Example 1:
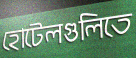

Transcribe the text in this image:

হোটেলগুলিতে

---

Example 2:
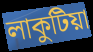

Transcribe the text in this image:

লাকুটিয়া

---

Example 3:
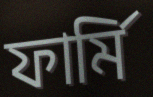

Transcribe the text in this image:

ফার্মি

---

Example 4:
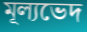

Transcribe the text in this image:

মূল্যভেদ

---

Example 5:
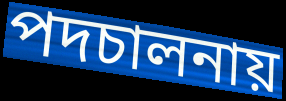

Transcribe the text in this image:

পদচালনায়